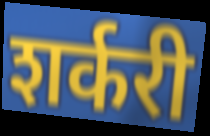
शर्करी